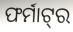
ଫର୍ମାଟ୍‌ର